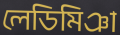
লেডিমিঞা